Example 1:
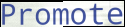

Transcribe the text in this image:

Promote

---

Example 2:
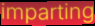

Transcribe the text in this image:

imparting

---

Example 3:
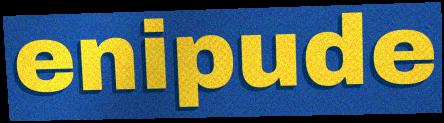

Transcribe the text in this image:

enipude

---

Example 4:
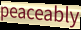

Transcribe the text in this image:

peaceably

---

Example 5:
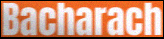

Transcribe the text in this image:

Bacharach